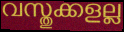
വസ്തുക്കളല്ല